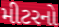
મીટરનો